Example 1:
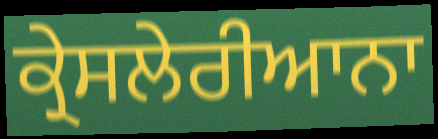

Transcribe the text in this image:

ਕ੍ਰੇਸਲੇਰੀਆਨਾ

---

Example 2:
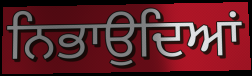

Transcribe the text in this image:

ਨਿਭਾਉਦਿਆਂ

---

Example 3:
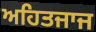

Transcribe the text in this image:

ਅਹਿਤਜਾਜ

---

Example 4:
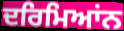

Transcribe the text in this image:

ਦਰਿਮਿਆਂਨ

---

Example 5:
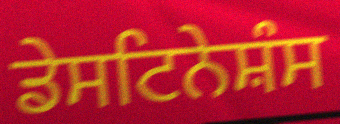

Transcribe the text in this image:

ਡੇਸਟਿਨੇਸ਼ੰਸ